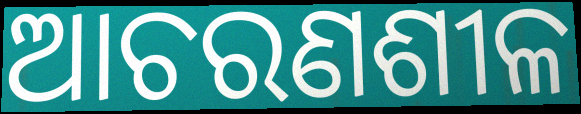
ଆଚରଣଶୀଳ